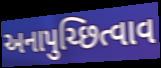
અનાપુચ્છિત્વાવ